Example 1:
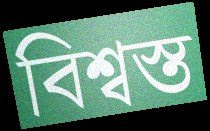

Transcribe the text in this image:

বিশ্বস্ত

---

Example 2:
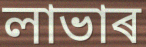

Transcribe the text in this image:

লাভাৰ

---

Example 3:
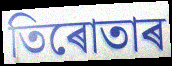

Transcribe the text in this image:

তিৰোতাৰ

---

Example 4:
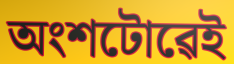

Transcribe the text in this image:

অংশটোৱেই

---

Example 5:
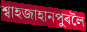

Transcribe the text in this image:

শ্বাহজাহানপুৰলৈ